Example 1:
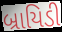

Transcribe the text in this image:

બ્રાયિડી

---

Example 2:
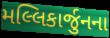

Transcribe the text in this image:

મલ્લિકાર્જુનના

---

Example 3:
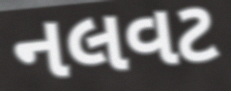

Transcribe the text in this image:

નલવટ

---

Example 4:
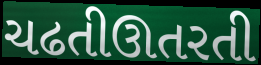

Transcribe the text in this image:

ચઢતીઊતરતી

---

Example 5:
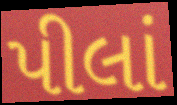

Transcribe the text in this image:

પીલાં